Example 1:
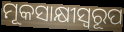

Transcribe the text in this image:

ମୂକସାକ୍ଷୀସ୍ୱରୂପ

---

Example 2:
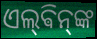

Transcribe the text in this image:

ଏଲ୍‌ଵିନ୍‌ଙ୍କ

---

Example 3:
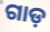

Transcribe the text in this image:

ଗାଡ଼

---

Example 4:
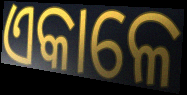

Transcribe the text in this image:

ଏକାଳେ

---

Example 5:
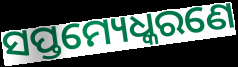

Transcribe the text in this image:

ସପ୍ତମ୍ୟେଧ୍କରଣେ